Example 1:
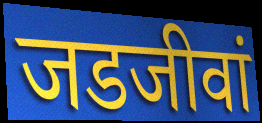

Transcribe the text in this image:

जडजीवां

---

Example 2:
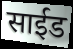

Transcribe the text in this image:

साईड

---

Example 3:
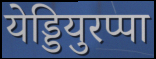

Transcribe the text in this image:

येड्डियुरप्पा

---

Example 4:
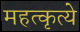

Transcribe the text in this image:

महत्कृत्ये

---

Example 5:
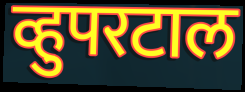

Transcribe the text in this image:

व्हुपरटाल